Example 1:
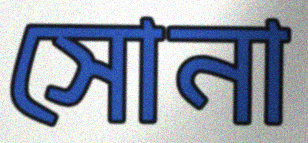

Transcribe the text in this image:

সোনা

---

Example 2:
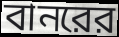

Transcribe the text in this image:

বানরের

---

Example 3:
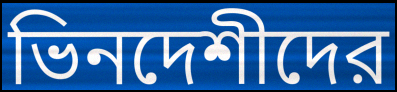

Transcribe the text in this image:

ভিনদেশীদের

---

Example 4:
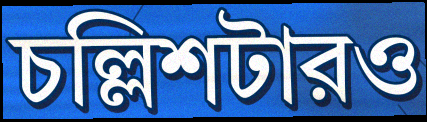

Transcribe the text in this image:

চল্লিশটারও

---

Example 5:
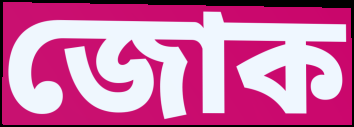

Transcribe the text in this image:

জোক